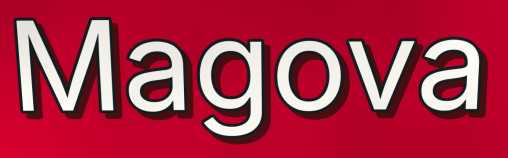
Magova